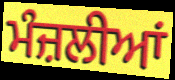
ਮੰਜ਼ਲੀਆਂ